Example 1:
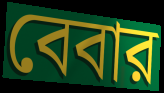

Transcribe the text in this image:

বেবার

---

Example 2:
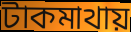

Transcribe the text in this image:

টাকমাথায়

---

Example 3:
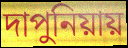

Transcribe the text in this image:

দাপুনিয়ায়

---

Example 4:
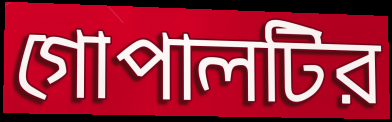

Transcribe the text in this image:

গোপালটির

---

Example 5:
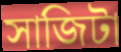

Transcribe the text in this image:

সাজিটা